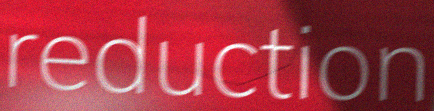
reduction